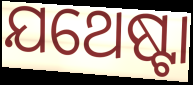
ଯଥେଷ୍ଟା